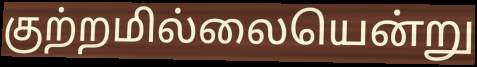
குற்றமில்லையென்று